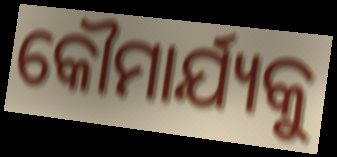
କୌମାର୍ଯ୍ୟକୁ